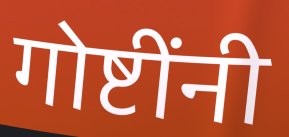
गोष्टींनी